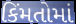
કિંમતોમાં